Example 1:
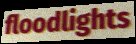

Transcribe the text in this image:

floodlights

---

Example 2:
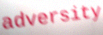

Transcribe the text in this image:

adversity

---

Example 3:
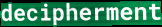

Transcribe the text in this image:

decipherment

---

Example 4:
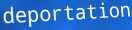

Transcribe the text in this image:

deportation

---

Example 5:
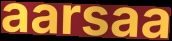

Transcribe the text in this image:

aarsaa